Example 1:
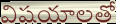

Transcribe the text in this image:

విషయాలతో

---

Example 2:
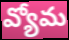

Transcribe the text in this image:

వ్యోమ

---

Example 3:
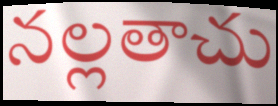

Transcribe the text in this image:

నల్లతాచు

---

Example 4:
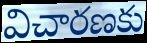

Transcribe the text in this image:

విచారణకు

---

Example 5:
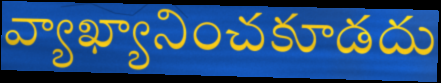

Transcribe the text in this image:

వ్యాఖ్యానించకూడదు